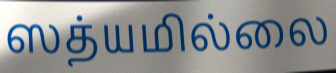
ஸத்யமில்லை